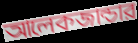
আলেকজান্ডার